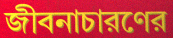
জীবনাচারণের